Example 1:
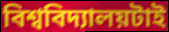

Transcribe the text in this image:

বিশ্ববিদ্যালয়টাই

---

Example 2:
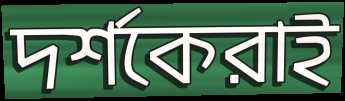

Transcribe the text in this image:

দর্শকেরাই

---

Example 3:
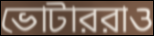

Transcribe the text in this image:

ভোটাররাও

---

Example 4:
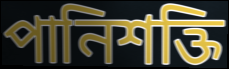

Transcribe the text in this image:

পানিশক্তি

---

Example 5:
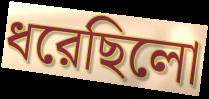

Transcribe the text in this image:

ধরেছিলো